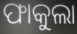
ଫାକୁଲା